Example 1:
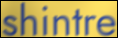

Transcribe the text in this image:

shintre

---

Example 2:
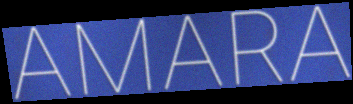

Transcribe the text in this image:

AMARA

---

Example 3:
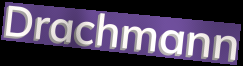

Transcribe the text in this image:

Drachmann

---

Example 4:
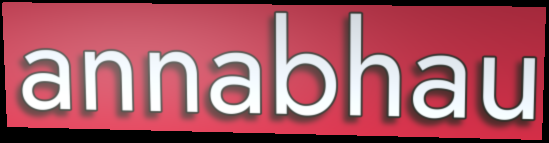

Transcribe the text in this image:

annabhau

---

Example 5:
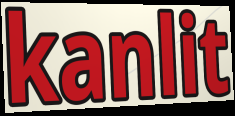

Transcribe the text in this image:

kanlit